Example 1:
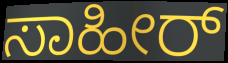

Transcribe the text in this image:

ಸಾಹೀರ್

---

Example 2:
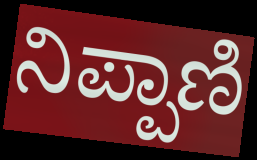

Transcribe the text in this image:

ನಿಪ್ಪಾಣಿ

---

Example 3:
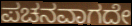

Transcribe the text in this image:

ಪಚನವಾಗದೇ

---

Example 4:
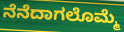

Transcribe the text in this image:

ನೆನೆದಾಗಲೊಮ್ಮೆ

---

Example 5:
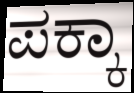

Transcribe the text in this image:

ಪಕ್ಕಾ